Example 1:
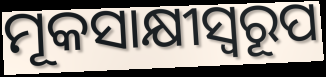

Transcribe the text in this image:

ମୂକସାକ୍ଷୀସ୍ୱରୂପ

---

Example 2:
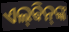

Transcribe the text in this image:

ଏଲ୍‌ଵିନ୍‌ଙ୍କ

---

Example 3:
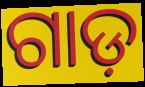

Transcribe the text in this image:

ଗାଡ଼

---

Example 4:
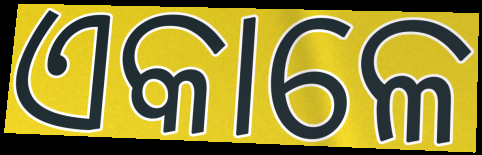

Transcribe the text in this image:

ଏକାଳେ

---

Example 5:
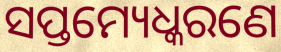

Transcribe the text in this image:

ସପ୍ତମ୍ୟେଧ୍କରଣେ